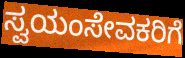
ಸ್ವಯಂಸೇವಕರಿಗೆ